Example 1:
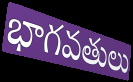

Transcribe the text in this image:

భాగవతులు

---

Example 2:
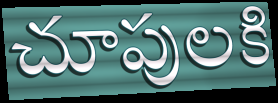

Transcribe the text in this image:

చూపులకి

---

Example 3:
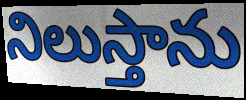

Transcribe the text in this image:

నిలుస్తాను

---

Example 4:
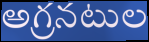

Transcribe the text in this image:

అగ్రనటుల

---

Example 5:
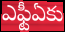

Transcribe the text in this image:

ఎఫ్టీఏకు